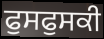
ਫੁਸਫੁਸਕੀ